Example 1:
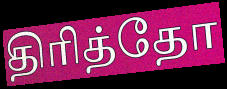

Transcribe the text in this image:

திரித்தோ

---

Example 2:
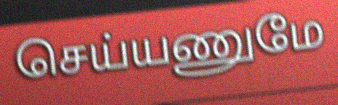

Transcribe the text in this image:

செய்யணுமே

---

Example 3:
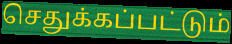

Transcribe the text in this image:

செதுக்கப்பட்டும்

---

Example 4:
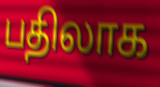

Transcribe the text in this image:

பதிலாக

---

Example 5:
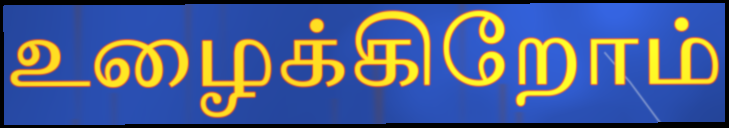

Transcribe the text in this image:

உழைக்கிறோம்